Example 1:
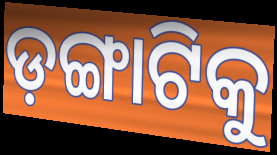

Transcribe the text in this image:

ଡ଼ଙ୍ଗାଟିକୁ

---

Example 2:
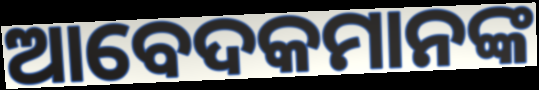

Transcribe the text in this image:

ଆବେଦକମାନଙ୍କ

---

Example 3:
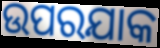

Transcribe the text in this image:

ଉପରଯାକ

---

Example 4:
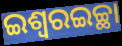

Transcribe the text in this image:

ଇଶ୍ୱରଇଚ୍ଛା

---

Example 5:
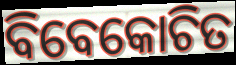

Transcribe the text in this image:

ବିବେକୋଚିତ